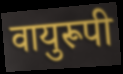
वायुरूपी